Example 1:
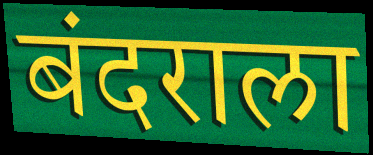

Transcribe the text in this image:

बंदराला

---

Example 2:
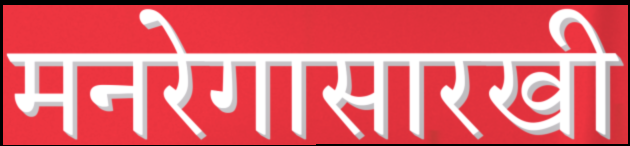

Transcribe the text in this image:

मनरेगासारखी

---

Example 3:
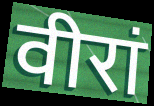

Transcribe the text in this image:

वीरां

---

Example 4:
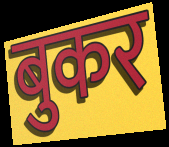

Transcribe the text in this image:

बुकर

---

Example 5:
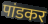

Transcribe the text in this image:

पांडकर